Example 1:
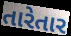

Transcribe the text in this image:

તારેતાર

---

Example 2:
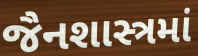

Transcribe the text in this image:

જૈનશાસ્ત્રમાં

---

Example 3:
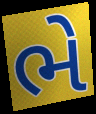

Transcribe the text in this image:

ભે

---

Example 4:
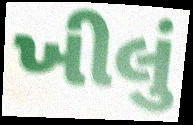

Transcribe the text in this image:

ખીલું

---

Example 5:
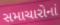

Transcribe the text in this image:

સમાચારોનાં